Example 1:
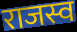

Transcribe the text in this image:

राजस्‍व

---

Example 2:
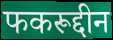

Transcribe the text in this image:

फकरूद्दीन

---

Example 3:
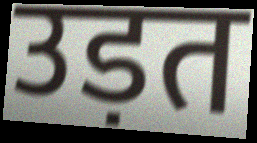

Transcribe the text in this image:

उड़त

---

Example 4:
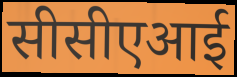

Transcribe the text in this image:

सीसीएआई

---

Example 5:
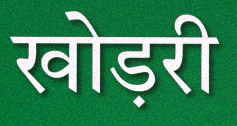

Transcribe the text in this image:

खोड़री